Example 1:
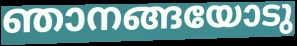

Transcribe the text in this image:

ഞാനങ്ങയോടു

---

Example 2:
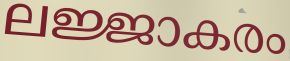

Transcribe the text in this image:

ലജ്ജാകരം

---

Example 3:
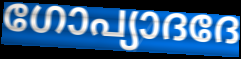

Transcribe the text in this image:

ഗോപ്യാദദേ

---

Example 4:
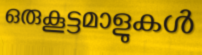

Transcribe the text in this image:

ഒരുകൂട്ടമാളുകൾ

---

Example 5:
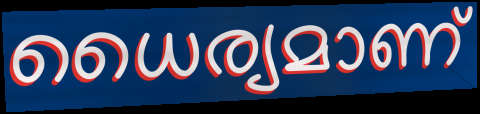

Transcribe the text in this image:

ധൈര്യമാണ്